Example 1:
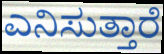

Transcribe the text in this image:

ಎನಿಸುತ್ತಾರೆ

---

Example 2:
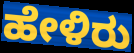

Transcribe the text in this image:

ಹೇಳಿರು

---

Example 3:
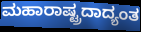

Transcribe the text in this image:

ಮಹಾರಾಷ್ಟ್ರದಾದ್ಯಂತ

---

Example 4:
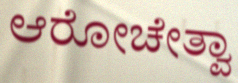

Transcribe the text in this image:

ಆರೋಚೇತ್ವಾ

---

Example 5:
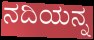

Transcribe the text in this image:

ನದಿಯನ್ನ